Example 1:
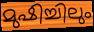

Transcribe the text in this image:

മുഷിച്ചിലും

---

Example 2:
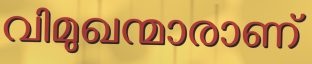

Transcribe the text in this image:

വിമുഖന്മാരാണ്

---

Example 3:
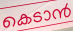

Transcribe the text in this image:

കെടാൻ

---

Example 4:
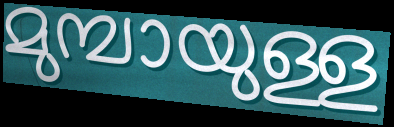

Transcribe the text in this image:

മുമ്പായുള്ള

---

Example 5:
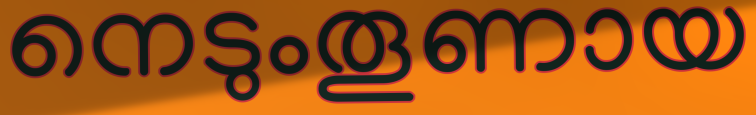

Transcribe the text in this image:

നെടുംതൂണായ